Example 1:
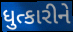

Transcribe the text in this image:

ધુત્કારીને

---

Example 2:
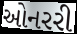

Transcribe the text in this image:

ઓનરરી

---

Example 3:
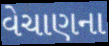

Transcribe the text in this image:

વેચાણના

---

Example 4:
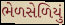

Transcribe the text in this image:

ભેળસેળિયું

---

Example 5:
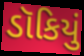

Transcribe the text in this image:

ડૉકિયું